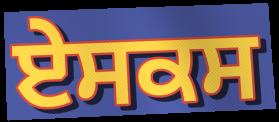
ਏਸਕਸ